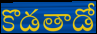
కొడతాడో